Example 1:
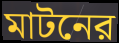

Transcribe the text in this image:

মাটনের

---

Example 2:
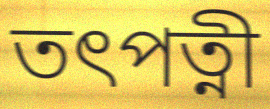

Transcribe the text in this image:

তৎপত্নী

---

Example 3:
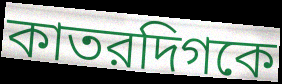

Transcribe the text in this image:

কাতরদিগকে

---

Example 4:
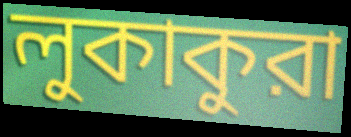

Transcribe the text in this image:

লুকাকুরা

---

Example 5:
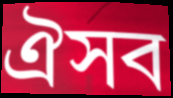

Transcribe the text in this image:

ঐসব